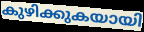
കുഴിക്കുകയായി